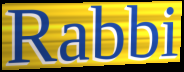
Rabbi